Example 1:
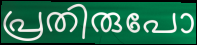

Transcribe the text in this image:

പ്രതിരുപോ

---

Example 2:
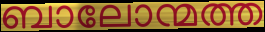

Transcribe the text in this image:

ബാലോന്മത്ത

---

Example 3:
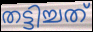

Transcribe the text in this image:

തട്ടിച്ചത്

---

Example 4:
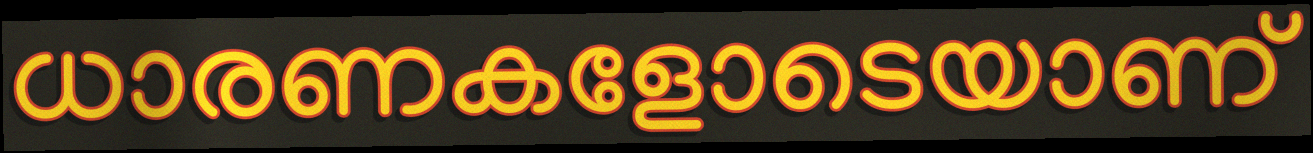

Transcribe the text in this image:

ധാരണകളോടെയാണ്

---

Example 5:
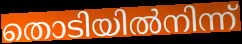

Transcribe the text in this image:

തൊടിയിൽനിന്ന്